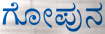
ಗೋಪುನ